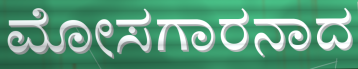
ಮೋಸಗಾರನಾದ